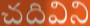
చదివిని